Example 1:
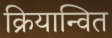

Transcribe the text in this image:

क्रियान्वित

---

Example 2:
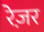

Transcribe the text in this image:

रेज़र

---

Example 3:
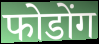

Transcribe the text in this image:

फोडोंग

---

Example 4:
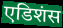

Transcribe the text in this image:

एडिशंस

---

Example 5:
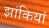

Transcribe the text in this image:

झांकियां